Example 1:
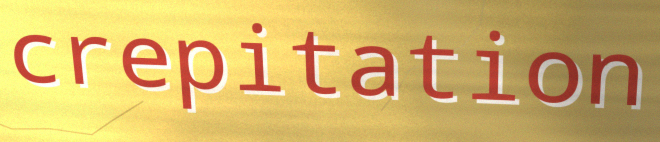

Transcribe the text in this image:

crepitation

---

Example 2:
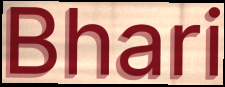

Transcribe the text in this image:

Bhari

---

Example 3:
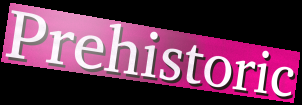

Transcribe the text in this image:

Prehistoric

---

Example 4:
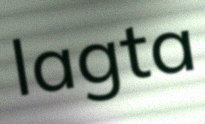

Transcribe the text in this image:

lagta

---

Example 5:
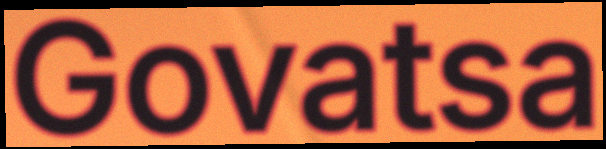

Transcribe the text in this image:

Govatsa